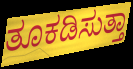
ತೂಕಡಿಸುತ್ತಾ